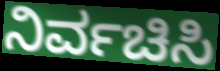
ನಿರ್ವಚಿಸಿ